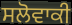
ਸਲੋਵਾਕੀ